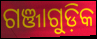
ଗଞ୍ଜାଗୁଡ଼ିକ